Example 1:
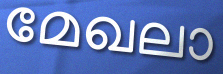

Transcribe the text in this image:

മേഖലാ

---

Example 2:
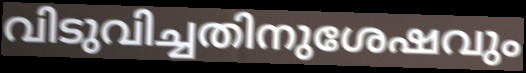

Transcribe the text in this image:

വിടുവിച്ചതിനുശേഷവും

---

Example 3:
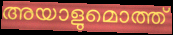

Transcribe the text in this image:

അയാളുമൊത്ത്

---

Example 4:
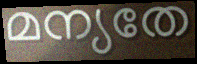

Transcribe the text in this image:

മന്യതേ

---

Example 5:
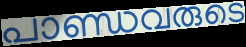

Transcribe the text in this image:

പാണ്ഡവരുടെ